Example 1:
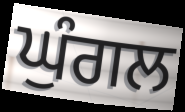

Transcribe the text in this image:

ਘੁੰਗਲ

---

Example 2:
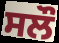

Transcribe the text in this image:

ਸਲੌ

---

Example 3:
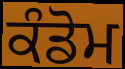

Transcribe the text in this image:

ਕੰਡੋਮ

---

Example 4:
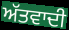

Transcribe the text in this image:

ਅੱਤਵਾਦੀ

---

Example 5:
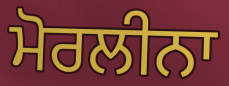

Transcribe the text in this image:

ਮੋਰਲੀਨਾ